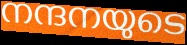
നന്ദനയുടെ